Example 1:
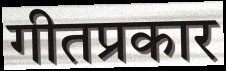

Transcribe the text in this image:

गीतप्रकार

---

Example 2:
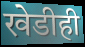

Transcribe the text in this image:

खेडीही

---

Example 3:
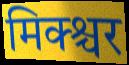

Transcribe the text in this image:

मिक्श्चर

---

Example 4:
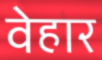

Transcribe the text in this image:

वेहार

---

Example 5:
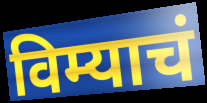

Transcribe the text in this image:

विम्याचं